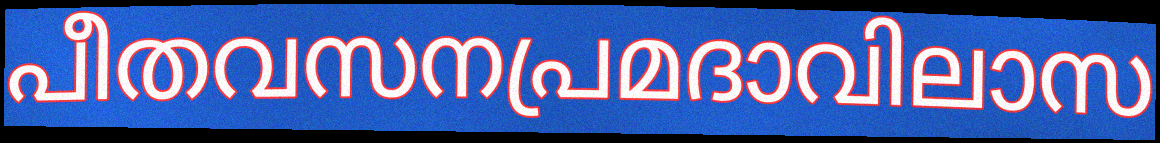
പീതവസനപ്രമദാവിലാസ